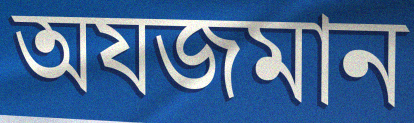
অযজমান